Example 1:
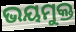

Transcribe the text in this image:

ଭୟମୁକ୍ତ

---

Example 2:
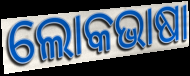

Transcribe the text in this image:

ଲୋକଭାଷା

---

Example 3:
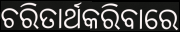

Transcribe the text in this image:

ଚରିତାର୍ଥକରିବାରେ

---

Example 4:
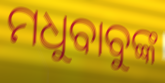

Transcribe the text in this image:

ମଧୁବାବୁଙ୍କ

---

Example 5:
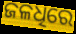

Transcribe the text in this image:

ଜଳଧିରେ